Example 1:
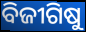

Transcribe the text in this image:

ବିଜୀଗିଷୁ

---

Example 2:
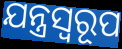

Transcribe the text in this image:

ଯନ୍ତ୍ରସ୍ୱରୂପ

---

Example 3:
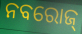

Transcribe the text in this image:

ନବରୋଜ୍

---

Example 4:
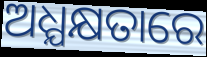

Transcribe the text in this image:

ଅଧ୍ଯକ୍ଷତାରେ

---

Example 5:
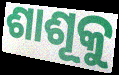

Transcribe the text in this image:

ଶାଶୂକୁ